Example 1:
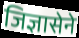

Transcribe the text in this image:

जिज्ञासेने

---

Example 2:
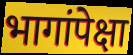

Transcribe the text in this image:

भागांपेक्षा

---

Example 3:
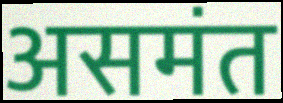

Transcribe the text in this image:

असमंत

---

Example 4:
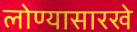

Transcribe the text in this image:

लोण्यासारखे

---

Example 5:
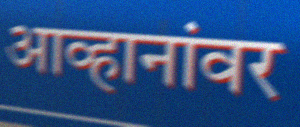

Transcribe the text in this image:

आव्हानांवर